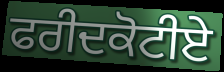
ਫਰੀਦਕੋਟੀਏ